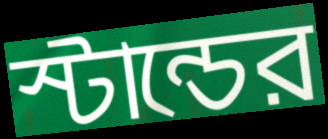
স্টান্ডের